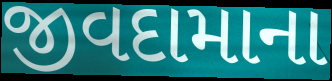
જીવદામાના